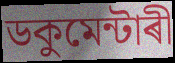
ডকুমেন্টাৰী